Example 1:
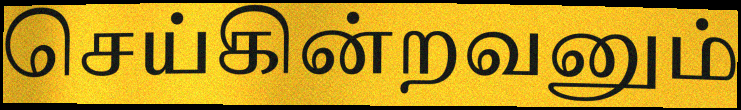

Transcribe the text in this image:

செய்கின்றவனும்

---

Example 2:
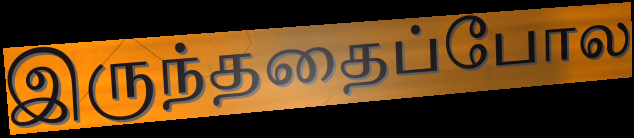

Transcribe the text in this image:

இருந்ததைப்போல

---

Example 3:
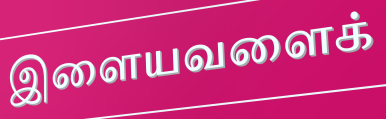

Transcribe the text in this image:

இளையவளைக்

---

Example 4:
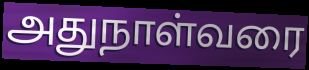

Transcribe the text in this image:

அதுநாள்வரை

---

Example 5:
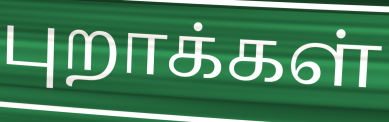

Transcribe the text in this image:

புறாக்கள்